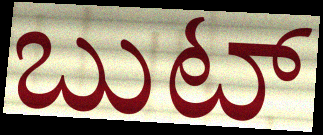
ಬುಟ್